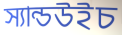
স্যান্ডউইচ